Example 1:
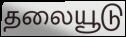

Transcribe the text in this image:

தலையூடு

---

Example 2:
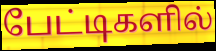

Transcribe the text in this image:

பேட்டிகளில்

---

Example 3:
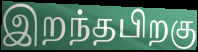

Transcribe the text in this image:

இறந்தபிறகு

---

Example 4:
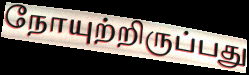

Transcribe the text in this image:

நோயுற்றிருப்பது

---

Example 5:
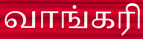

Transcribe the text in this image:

வாங்கரி